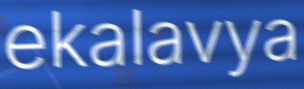
ekalavya